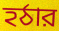
হঠার